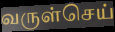
வருள்செய்